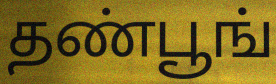
தண்பூங்